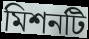
মিশনটি